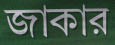
জাকার